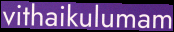
vithaikulumam